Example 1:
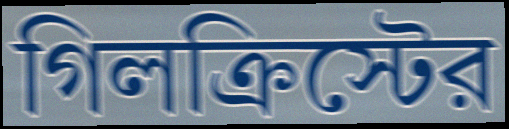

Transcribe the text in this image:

গিলক্রিস্টের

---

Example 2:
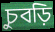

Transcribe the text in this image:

চুবড়ি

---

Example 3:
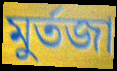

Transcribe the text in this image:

মুর্তজা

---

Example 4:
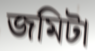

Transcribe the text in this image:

জমিটা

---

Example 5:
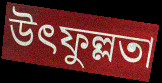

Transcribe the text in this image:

উৎফুল্লতা